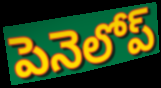
పెనెలోప్